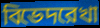
বিভেদরেখা